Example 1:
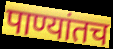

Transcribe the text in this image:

पाण्यांतच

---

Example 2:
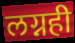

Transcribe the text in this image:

लग्नही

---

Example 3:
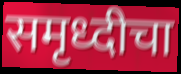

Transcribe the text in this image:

समृध्दीचा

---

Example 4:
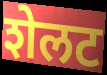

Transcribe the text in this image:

शेलट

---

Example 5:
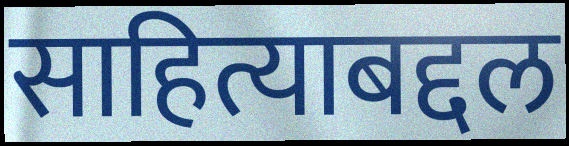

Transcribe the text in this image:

साहित्याबद्दल